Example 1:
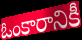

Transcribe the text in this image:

ఓంకారానికీ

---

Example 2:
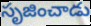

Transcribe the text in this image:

సృజించాడు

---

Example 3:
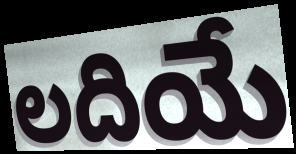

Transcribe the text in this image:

లదియే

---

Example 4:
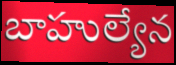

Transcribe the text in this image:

బాహుల్యేన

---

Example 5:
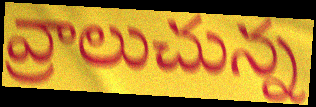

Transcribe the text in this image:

వ్రాలుచున్న